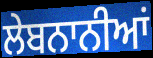
ਲੇਬਨਾਨੀਆਂ